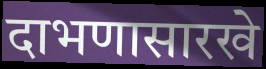
दाभणासारखे